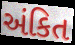
અંકિત